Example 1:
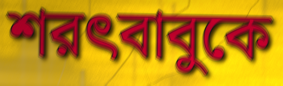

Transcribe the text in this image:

শরৎবাবুকে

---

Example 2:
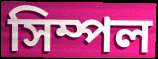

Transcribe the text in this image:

সিম্পল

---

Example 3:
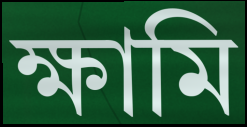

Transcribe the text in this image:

ক্ষামি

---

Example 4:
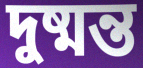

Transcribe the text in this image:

দুষ্মন্ত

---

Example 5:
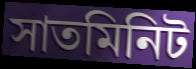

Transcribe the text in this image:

সাতমিনিট